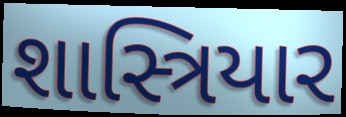
શાસ્ત્રિયાર